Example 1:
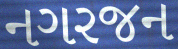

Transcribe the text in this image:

નગરજન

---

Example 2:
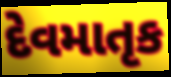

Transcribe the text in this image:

દેવમાતૃક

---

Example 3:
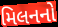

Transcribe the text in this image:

મિલનનો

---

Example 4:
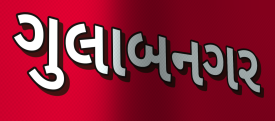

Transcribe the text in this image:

ગુલાબનગર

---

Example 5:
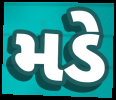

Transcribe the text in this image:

મડે